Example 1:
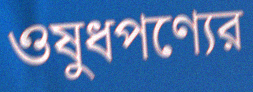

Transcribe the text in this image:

ওষুধপণ্যের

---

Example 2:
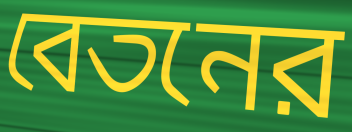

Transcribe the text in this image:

বেতনের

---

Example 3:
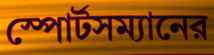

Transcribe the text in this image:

স্পোর্টসম্যানের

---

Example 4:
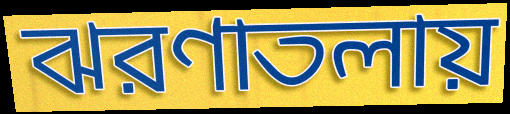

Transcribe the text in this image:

ঝরণাতলায়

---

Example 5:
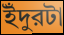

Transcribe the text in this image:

ইঁদুরটা